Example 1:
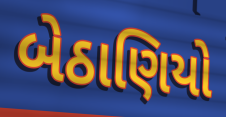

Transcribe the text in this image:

બેઠાણિયો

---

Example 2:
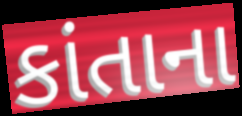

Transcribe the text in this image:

કાંતાના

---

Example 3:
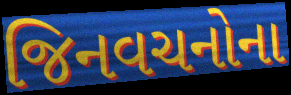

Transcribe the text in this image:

જિનવચનોના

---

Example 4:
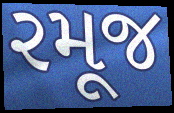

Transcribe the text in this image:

રમૂજ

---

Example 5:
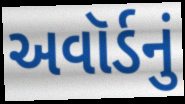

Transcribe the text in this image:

અવૉર્ડનું